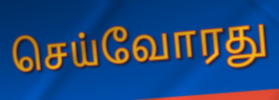
செய்வோரது